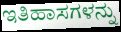
ಇತಿಹಾಸಗಳನ್ನು